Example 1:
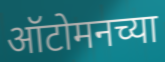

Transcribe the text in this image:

ऑटोमनच्या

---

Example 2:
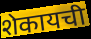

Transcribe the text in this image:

शेकायची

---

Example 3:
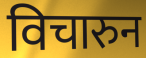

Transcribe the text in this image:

विचारुन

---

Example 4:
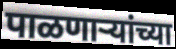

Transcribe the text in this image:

पाळणाऱ्यांच्या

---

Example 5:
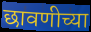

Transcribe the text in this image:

छावणीच्या